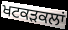
ਖਟਕੜਕਲਾਂ